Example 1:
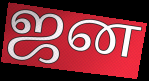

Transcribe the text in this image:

ஜன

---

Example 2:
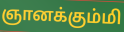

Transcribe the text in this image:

ஞானக்கும்மி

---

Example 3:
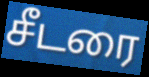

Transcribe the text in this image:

சீடரை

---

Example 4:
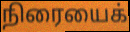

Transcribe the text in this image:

நிரையைக்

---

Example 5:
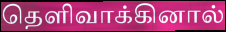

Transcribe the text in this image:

தெளிவாக்கினால்